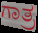
ಗಾತ್ರ